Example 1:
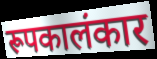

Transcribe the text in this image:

रूपकालंकार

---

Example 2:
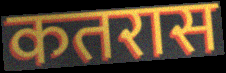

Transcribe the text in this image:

कतरास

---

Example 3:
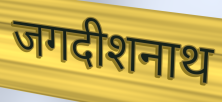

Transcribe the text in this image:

जगदीशनाथ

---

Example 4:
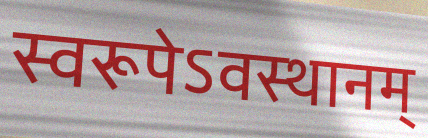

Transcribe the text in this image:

स्वरूपेऽवस्थानम्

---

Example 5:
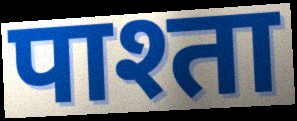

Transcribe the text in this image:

पाश्ता